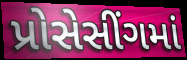
પ્રોસેસીંગમાં